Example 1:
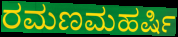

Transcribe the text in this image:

ರಮಣಮಹರ್ಷಿ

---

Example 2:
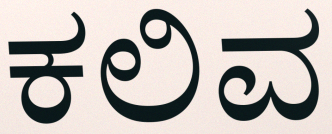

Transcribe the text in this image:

ಕಲಿವ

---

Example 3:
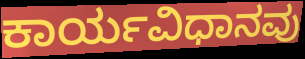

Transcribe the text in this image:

ಕಾರ್ಯವಿಧಾನವು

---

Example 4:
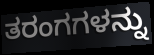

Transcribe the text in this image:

ತರಂಗಗಳನ್ನು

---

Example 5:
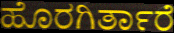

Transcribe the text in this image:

ಹೊರಗಿರ್ತಾರೆ